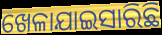
ଖେଳାଯାଇସାରିଛି